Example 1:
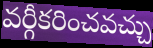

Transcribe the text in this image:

వర్గీకరించవచ్చు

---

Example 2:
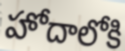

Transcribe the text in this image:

హోదాలోకి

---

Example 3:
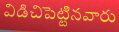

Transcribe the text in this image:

విడిచిపెట్టినవారు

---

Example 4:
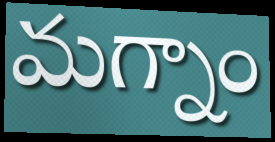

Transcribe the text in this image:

మగ్నాం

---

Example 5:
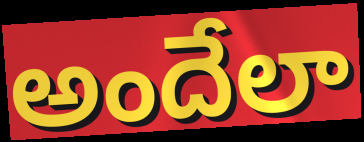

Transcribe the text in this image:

అందేలా